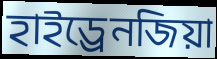
হাইড্রেনজিয়া